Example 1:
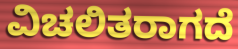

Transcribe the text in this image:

ವಿಚಲಿತರಾಗದೆ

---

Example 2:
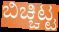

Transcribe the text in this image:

ಬಿಚ್ಚಿಟ್ಟ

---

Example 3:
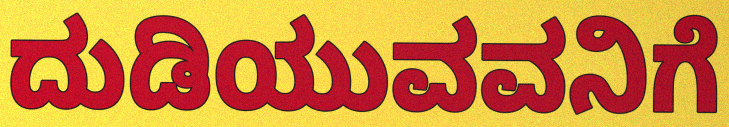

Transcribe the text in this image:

ದುಡಿಯುವವನಿಗೆ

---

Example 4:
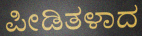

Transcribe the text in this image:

ಪೀಡಿತಳಾದ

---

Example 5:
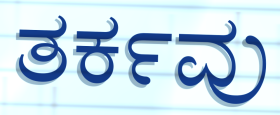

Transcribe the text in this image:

ತರ್ಕವು